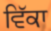
ਵਿੱਕਾ